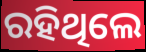
ରହିଥିଲେ